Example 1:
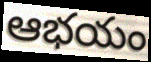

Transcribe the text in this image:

ఆభయం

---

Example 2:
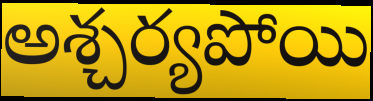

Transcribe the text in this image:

అశ్చర్యపోయి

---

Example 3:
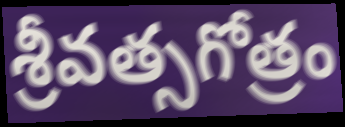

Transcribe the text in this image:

శ్రీవత్సగోత్రం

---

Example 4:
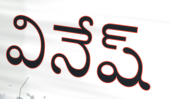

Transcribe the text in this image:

వినేష్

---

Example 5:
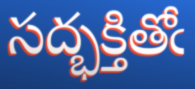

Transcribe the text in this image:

సద్భక్తితోఁ